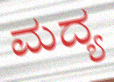
ಮದ್ಯ